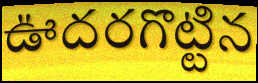
ఊదరగొట్టిన